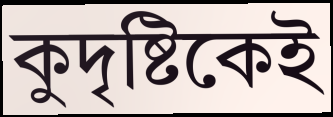
কুদৃষ্টিকেই